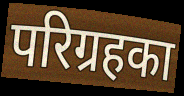
परिग्रहका